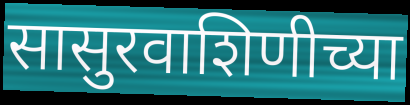
सासुरवाशिणीच्या